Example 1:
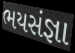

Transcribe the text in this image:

ભયસંજ્ઞા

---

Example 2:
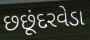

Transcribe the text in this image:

છછૂંદરવેડા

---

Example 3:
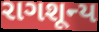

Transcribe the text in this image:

રાગશૂન્ય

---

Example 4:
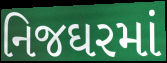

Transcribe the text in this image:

નિજઘરમાં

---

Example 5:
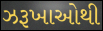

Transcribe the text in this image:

ઝરૂખાઓથી